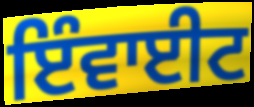
ਇੰਵਾਈਟ